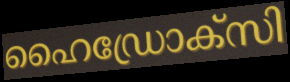
ഹൈഡ്രോക്സി